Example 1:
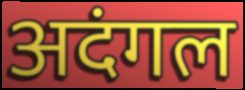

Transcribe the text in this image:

अदंगल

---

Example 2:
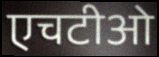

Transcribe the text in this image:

एचटीओ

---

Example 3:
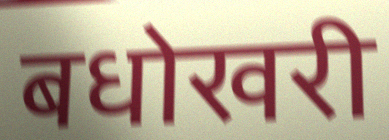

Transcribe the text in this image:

बधोखरी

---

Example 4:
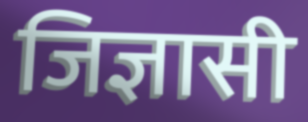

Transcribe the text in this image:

जिज्ञासी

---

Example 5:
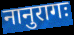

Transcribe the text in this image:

नानुरागः